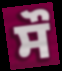
ਸੌ